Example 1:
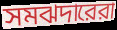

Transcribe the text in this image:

সমঝদারেরা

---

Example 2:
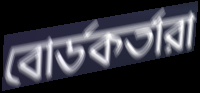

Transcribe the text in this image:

বোর্ডকর্তারা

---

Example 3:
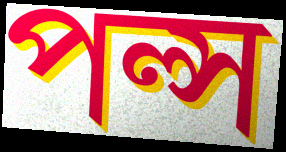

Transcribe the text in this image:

পল্স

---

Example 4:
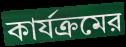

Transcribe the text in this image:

কার্যক্রমের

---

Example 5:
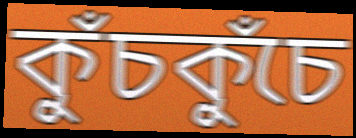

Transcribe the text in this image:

কুঁচকুঁচে